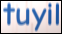
tuyil